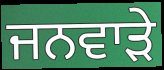
ਜਨਵਾੜੇ